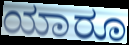
ಯಾರೂ